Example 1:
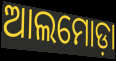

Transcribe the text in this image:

ଆଲମୋଡ଼ା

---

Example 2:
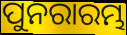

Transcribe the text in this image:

ପୁନରାରମ୍ଭ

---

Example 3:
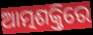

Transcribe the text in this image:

ଆତ୍ମଶକ୍ତିରେ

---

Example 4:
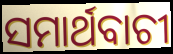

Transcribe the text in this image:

ସମାର୍ଥବାଚୀ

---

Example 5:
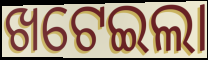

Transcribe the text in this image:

ଖଟେଇଲା